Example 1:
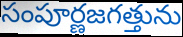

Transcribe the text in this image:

సంపూర్ణజగత్తును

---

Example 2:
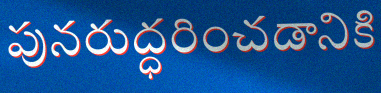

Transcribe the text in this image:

పునరుద్ధరించడానికి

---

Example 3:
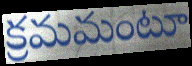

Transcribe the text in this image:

క్రమమంటూ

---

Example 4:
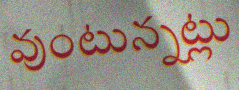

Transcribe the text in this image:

వుంటున్నట్లు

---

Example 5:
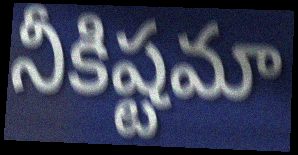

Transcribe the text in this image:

నీకిష్టమా